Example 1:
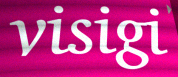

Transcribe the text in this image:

visigi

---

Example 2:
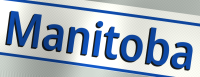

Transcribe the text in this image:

Manitoba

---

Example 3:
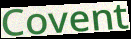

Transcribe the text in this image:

Covent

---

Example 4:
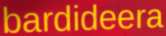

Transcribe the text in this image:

bardideera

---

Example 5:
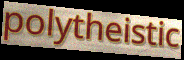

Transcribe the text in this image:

polytheistic